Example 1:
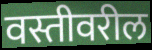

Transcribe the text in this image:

वस्तीवरील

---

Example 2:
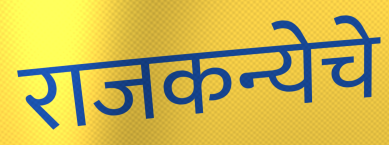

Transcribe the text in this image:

राजकन्येचे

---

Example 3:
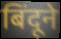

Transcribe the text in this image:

बिंदूने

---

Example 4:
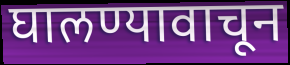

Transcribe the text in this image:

घालण्यावाचून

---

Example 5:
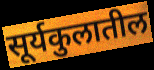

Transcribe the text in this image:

सूर्यकुलातील